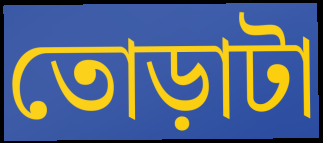
তোড়াটা